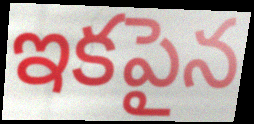
ఇకపైన